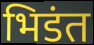
भिडंत